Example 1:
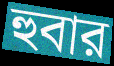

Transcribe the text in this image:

হুবার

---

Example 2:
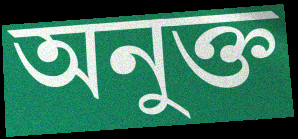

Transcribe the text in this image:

অনুক্ত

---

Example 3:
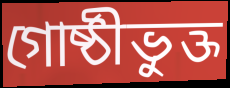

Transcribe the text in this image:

গোষ্ঠীভুক্ত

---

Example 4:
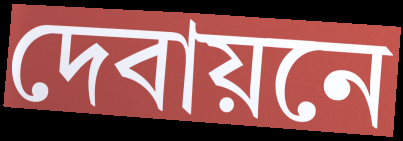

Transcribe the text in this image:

দেবায়নে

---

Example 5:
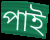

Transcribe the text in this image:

পাই